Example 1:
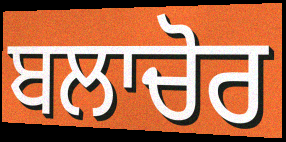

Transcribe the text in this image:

ਬਲਾਚੋਰ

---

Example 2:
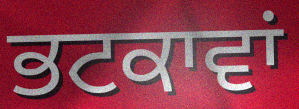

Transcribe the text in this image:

ਭਟਕਾਵਾਂ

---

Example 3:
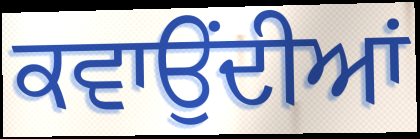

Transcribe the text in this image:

ਕਵਾਉਂਦੀਆਂ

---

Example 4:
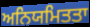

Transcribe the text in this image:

ਅਨਿਯਮਿਤਤਾ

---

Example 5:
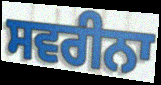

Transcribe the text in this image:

ਸਵਰੀਨਾ